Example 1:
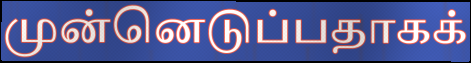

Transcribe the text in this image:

முன்னெடுப்பதாகக்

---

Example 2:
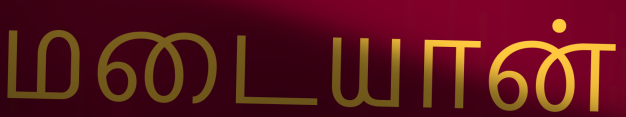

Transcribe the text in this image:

மடையான்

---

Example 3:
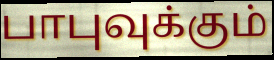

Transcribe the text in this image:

பாபுவுக்கும்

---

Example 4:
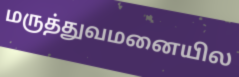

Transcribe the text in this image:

மருத்துவமனையில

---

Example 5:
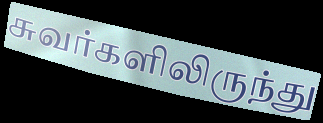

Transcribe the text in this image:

சுவர்களிலிருந்து